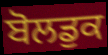
ਬੋਲਡੁਕ